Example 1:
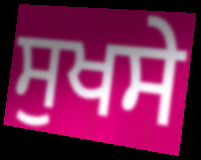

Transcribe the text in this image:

ਸੁਖਸੇ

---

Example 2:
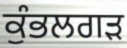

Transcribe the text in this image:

ਕੁੰਭਲਗੜ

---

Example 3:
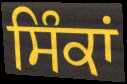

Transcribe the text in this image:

ਸਿੰਕਾਂ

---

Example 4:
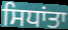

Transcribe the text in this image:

ਸਿਧਾਂਤਾ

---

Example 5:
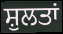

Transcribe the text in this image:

ਸ਼ੁਲਤਾਂ